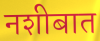
नशीबात